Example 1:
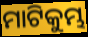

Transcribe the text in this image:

ମାଟିକୁମ୍ଭ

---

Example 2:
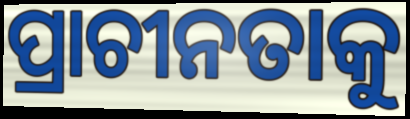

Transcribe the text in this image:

ପ୍ରାଚୀନତାକୁ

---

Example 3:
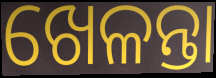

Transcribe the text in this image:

ଖେଳନ୍ତା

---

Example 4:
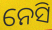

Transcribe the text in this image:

ନେସି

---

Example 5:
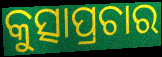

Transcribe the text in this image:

କୁତ୍ସାପ୍ରଚାର